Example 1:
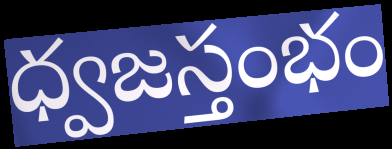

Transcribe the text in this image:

ధ్వజస్తంభం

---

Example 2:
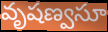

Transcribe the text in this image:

వృషణ్వసూ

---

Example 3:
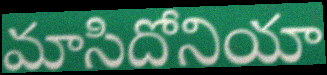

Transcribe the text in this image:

మాసిదోనియా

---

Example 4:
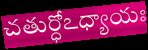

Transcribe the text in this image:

చతుర్ధోఽధ్యాయః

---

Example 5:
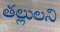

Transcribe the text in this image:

తల్లులని